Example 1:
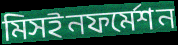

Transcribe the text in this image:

মিসইনফর্মেশন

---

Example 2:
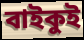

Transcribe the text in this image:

বাইকুই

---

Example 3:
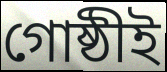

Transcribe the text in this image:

গোষ্ঠীই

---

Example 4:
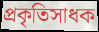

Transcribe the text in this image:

প্রকৃতিসাধক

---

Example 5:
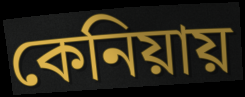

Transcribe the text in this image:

কেনিয়ায়